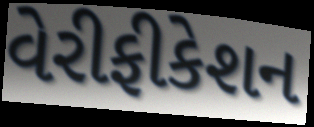
વેરીફીકેશન